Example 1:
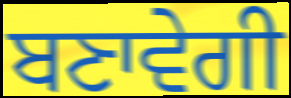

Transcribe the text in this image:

ਬਣਾਵੇਗੀ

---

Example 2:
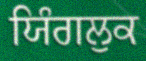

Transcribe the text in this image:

ਯਿੰਗਲੁਕ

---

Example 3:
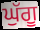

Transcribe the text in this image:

ਘੁੱਗੂ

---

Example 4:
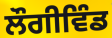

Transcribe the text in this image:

ਲੌਗੀਵਿੰਡ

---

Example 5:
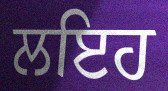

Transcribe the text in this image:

ਲਇਹ